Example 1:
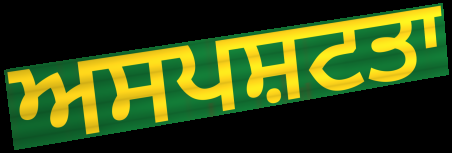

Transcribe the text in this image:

ਅਸਪਸ਼ਟਤਾ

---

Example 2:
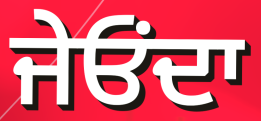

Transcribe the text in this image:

ਜੇਓੰਦਾ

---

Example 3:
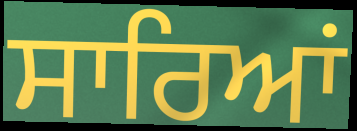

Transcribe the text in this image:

ਸਾਰਿਆਂ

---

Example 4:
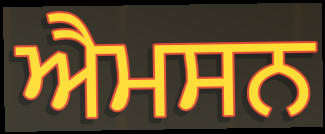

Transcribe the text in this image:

ਐਮਸਨ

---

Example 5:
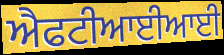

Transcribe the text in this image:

ਐਫਟੀਆਈਆਈ